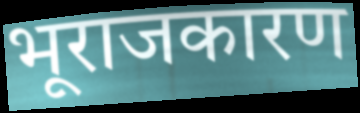
भूराजकारण